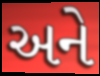
અને